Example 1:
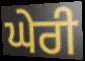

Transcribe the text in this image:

ਘੇਰੀ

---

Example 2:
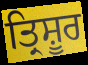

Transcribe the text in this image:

ਤ੍ਰਿਸ਼ੂਰ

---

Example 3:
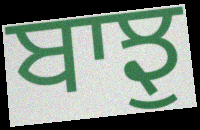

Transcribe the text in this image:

ਬਾਝੁ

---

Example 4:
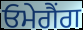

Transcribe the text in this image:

ਓਮੇਗੈਂਗ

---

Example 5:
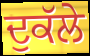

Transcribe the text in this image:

ਦੁਕੱਲੇ